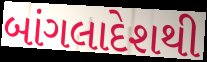
બાંગલાદેશથી